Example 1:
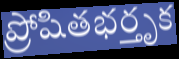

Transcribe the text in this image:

ప్రోషితభర్తృక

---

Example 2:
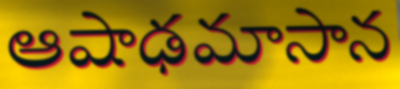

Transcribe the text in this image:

ఆషాఢమాసాన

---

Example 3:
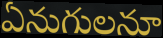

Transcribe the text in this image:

ఏనుగులనూ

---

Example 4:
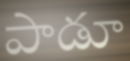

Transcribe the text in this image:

పాడూ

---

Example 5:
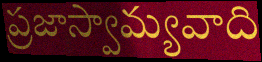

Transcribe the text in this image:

ప్రజాస్వామ్యవాది